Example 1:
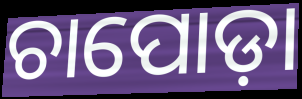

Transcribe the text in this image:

ଚାପୋଡ଼ା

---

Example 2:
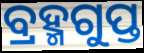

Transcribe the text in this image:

ବ୍ରହ୍ମଗୁପ୍ତ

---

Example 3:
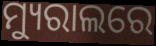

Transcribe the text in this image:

ମ୍ୟୁରାଲରେ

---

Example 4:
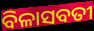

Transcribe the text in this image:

ବିଳାସବତୀ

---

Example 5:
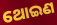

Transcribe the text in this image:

ଥୋଇଣ